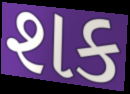
શક